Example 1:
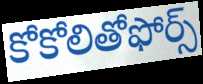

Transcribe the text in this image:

కోకోలితోఫోర్స్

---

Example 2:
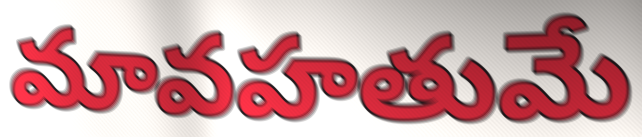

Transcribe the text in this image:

మావహతుమే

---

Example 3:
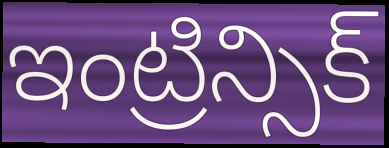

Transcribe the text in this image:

ఇంట్రిన్సిక్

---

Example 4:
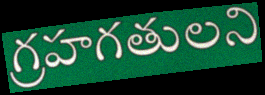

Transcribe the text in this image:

గ్రహగతులని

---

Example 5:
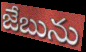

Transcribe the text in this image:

జేబును